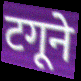
टगूने